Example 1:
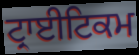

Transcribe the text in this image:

ਟ੍ਰਾਈਟਿਕਮ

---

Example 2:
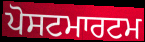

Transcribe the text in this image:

ਪੋਸਟਮਾਰਟਮ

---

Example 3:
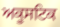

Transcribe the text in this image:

ਅਕੂਸਟਿਕ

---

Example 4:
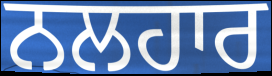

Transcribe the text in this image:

ਨਲਹਾਰ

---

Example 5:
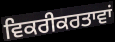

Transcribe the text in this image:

ਵਿਕਰੀਕਰਤਾਵਾਂ